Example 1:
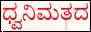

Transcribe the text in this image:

ಧ್ವನಿಮತದ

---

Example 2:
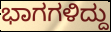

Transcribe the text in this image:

ಭಾಗಗಳಿದ್ದು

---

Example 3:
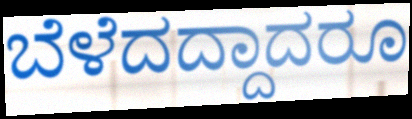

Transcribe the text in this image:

ಬೆಳೆದದ್ದಾದರೂ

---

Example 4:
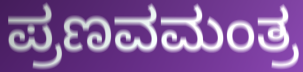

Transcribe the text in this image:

ಪ್ರಣವಮಂತ್ರ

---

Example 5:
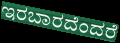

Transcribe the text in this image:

ಇರಬಾರದೆಂದರೆ